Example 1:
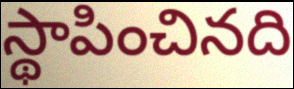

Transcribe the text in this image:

స్థాపించినది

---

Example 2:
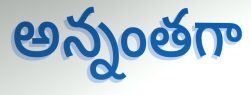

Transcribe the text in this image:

అన్నంతగా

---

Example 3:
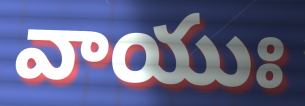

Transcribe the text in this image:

వాయుః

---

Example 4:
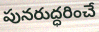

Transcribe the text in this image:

పునరుద్ధరించే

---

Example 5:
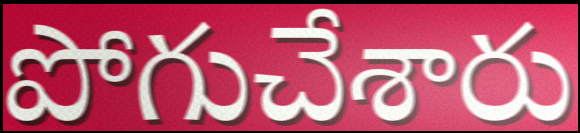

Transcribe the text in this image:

పోగుచేశారు